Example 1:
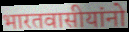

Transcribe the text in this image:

भारतवासीयांनो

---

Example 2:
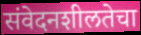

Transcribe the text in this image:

संवेदनशीलतेचा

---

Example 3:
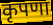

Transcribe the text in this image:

कृपणा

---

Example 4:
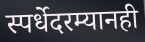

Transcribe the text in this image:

स्पर्धेदरम्यानही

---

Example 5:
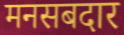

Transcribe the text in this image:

मनसबदार